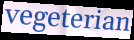
vegeterian